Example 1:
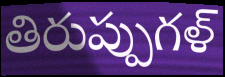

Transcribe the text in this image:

తిరుప్పుగళ్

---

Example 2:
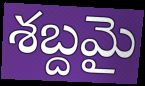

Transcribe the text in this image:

శబ్దమై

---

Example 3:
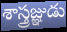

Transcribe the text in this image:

శాస్త్రజ్ఞుడు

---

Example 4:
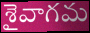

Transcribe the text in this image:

శైవాగమ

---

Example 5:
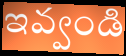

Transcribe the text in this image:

ఇవ్వండి